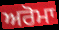
ਅਰੋਮਾ